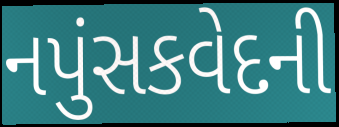
નપુંસકવેદની